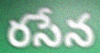
రసేన